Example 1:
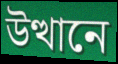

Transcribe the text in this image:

উত্থানে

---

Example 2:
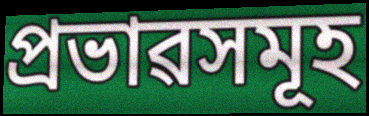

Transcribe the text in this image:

প্ৰভাৱসমূহ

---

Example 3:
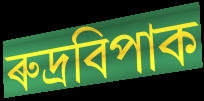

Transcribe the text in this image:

ৰুদ্ৰবিপাক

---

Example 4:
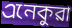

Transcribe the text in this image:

এনেকুৱা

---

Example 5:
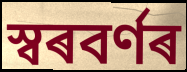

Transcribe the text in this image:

স্বৰবৰ্ণৰ